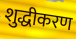
शुद्धीकरण